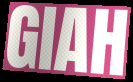
GIAH